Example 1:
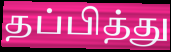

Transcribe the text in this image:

தப்பித்து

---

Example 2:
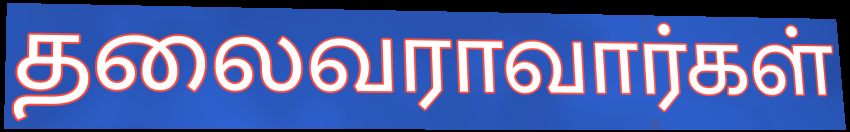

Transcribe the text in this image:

தலைவராவார்கள்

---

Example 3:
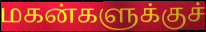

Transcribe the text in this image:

மகன்களுக்குச்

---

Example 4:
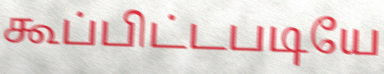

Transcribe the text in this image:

கூப்பிட்டபடியே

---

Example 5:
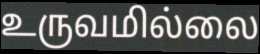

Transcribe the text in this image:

உருவமில்லை